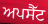
ਅਪਸੈੱਟ